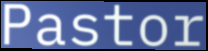
Pastor